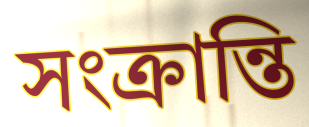
সংক্রান্তি